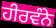
ਹੀਰਵੰਨੇ